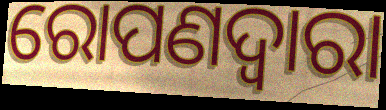
ରୋପଣଦ୍ୱାରା